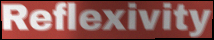
Reflexivity